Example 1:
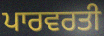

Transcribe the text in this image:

ਪਾਰਵਰਤੀ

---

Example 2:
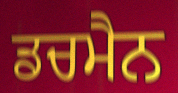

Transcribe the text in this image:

ਡਚਮੈਨ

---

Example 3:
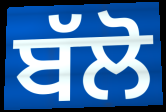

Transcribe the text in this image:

ਬੱਲੋ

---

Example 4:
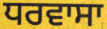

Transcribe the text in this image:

ਧਰਵਾਸਾ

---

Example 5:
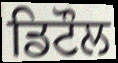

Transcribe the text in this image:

ਡਿਟੌਲ